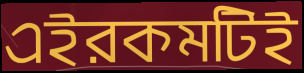
এইরকমটিই